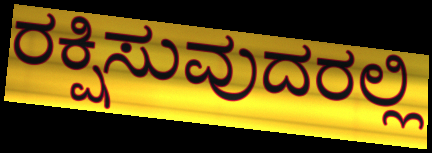
ರಕ್ಷಿಸುವುದರಲ್ಲಿ